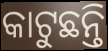
କାଟୁଛନ୍ତି